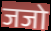
जजो